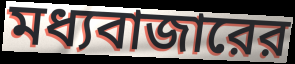
মধ্যবাজারের